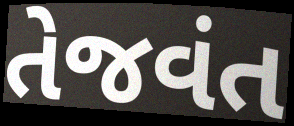
તેજવંત